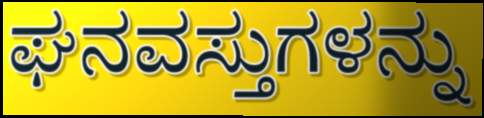
ಘನವಸ್ತುಗಳನ್ನು